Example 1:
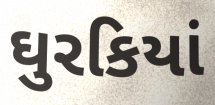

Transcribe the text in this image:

ઘુરકિયાં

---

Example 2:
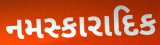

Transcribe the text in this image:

નમસ્કારાદિક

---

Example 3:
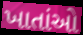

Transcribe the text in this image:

ખાતાંઓ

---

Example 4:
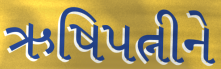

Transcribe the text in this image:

ઋષિપત્નીને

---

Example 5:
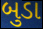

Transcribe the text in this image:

બુડા